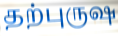
தற்புருஷ